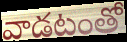
వాడటంతో